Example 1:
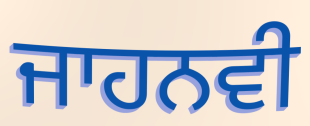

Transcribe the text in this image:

ਜਾਹਨਵੀ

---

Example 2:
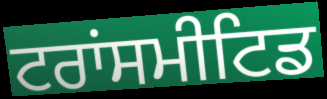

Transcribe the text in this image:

ਟਰਾਂਸਮੀਟਿਡ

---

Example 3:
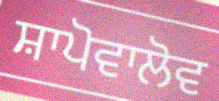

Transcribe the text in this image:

ਸ਼ਾਪੋਵਾਲੋਵ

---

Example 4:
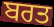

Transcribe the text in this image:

ਬਰਤ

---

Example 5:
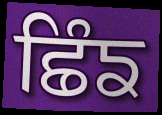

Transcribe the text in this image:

ਛਿੰਙ